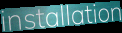
installation